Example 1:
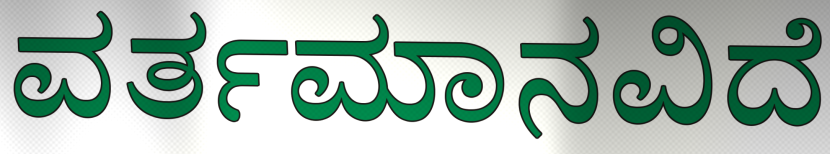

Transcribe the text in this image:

ವರ್ತಮಾನವಿದೆ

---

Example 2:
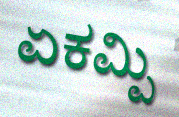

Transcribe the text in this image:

ಏಕಮ್ಪಿ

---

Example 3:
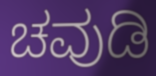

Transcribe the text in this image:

ಚವುಡಿ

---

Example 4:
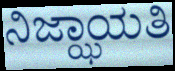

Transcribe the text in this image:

ನಿಜ್ಝಾಯತಿ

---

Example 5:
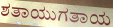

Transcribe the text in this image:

ಶತಾಯುಗತಾಯ